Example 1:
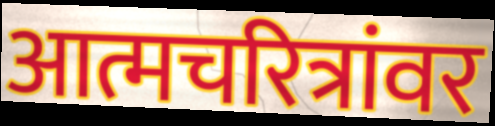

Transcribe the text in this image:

आत्मचरित्रांवर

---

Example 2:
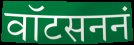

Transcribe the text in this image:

वॉटसननं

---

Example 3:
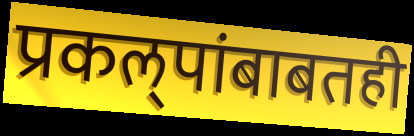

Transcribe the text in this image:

प्रकल्पांबाबतही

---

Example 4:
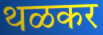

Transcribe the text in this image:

थळकर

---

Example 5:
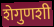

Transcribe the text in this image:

शेगुणशी